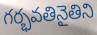
గర్భవతినైతిని